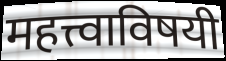
महत्त्वाविषयी